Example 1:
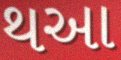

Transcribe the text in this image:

થઆ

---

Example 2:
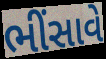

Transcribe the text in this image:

ભીંસાવે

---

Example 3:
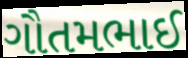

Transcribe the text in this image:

ગૌતમભાઈ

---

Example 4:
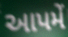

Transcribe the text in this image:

આપમેં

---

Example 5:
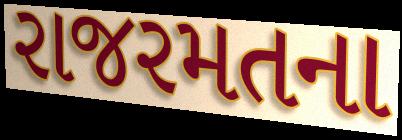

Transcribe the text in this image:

રાજરમતના